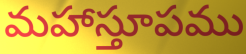
మహాస్తూపము